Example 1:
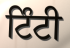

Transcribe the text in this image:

ਟਿੰਟੀ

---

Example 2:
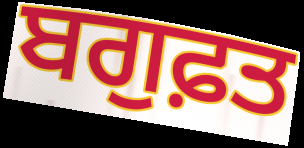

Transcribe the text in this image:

ਬਗੁਫ਼ਤ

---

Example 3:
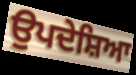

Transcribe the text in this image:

ਉਪਦੇਸ਼ਿਆ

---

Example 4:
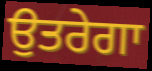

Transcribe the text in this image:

ਉਤਰੇਗਾ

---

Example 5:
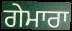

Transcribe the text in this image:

ਗੇਮਾਰਾ